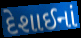
દેશાઈનાં